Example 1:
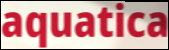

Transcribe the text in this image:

aquatica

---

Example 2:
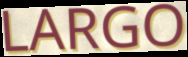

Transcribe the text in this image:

LARGO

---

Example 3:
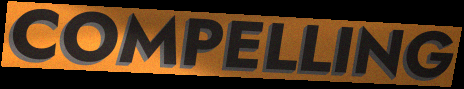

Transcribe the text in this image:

COMPELLING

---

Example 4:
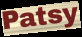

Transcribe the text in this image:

Patsy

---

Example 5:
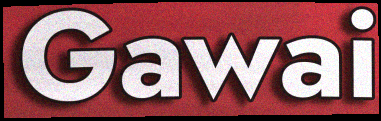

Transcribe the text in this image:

Gawai